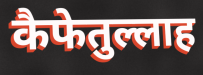
कैफेतुल्लाह